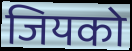
जियको